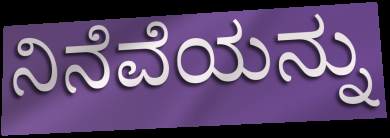
ನಿನೆವೆಯನ್ನು